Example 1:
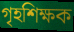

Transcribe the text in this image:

গৃহশিক্ষক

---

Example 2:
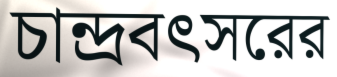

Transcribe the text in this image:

চান্দ্রবৎসরের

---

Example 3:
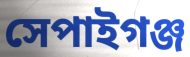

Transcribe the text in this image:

সেপাইগঞ্জ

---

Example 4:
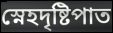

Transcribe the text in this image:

স্নেহদৃষ্টিপাত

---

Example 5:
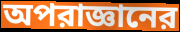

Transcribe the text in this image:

অপরাজ্ঞানের